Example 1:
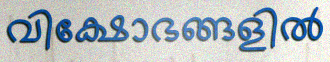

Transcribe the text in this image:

വിക്ഷോഭങ്ങളിൽ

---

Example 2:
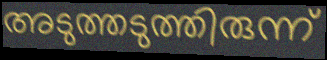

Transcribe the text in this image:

അടുത്തടുത്തിരുന്ന്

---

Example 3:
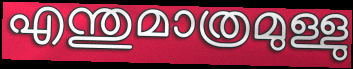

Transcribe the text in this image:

എന്തുമാത്രമുള്ളു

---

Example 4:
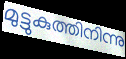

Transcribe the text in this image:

മുട്ടുകുത്തിനിന്നു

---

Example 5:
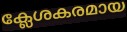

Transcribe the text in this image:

ക്ലേശകരമായ